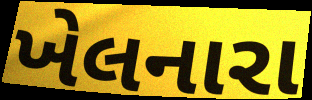
ખેલનારા